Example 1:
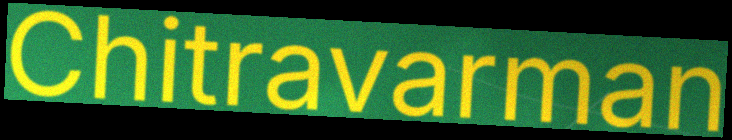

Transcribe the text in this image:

Chitravarman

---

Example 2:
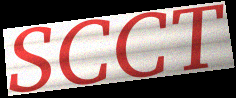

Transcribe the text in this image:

SCCT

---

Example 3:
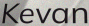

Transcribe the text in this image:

Kevan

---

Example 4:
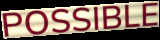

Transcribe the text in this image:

POSSIBLE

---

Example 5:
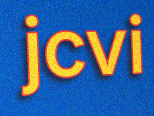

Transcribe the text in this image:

jcvi